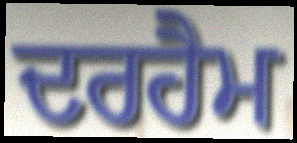
ਦਰਹੈਮ